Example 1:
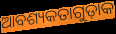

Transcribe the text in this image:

ଆବଶ୍ୟକତାଗୁଡ଼ାକ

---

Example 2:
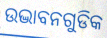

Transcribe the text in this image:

ଉଦ୍ଭାବନଗୁଡିକ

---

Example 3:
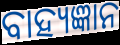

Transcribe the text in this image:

ବାହ୍ୟଜ୍ଞାନ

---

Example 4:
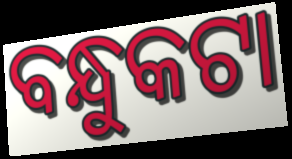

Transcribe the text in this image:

ବନ୍ଧୁକଟା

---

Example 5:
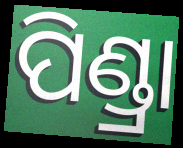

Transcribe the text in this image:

ପିଣ୍ଡ୍ରା